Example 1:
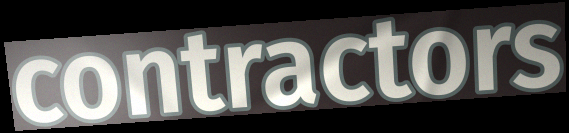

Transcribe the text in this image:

contractors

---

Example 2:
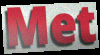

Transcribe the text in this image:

Met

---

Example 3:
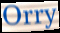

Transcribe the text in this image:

Orry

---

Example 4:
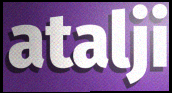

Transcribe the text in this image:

atalji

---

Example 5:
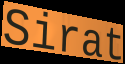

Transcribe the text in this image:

Sirat